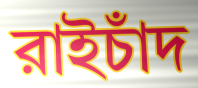
রাইচাঁদ